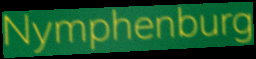
Nymphenburg